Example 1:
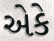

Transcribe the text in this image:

એકે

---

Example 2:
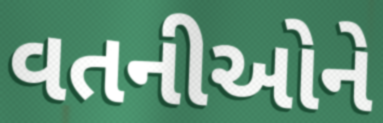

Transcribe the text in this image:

વતનીઓને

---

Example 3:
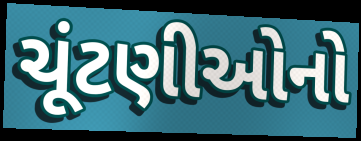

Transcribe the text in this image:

ચૂંટણીઓનો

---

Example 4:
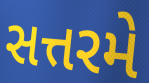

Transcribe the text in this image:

સત્તરમે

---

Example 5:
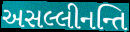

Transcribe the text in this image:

અસલ્લીનન્તિ